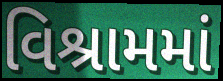
વિશ્રામમાં